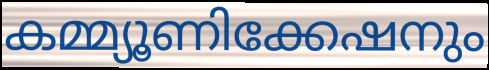
കമ്മ്യൂണിക്കേഷനും